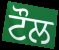
ਟੌਲ